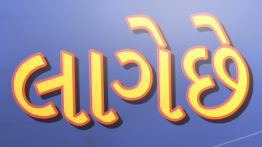
લાગેછે